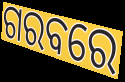
ଗରବରେ